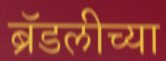
ब्रॅडलीच्या